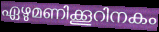
ഏഴുമണിക്കൂറിനകം